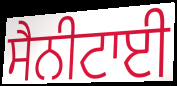
ਸੈਨੀਟਾਈ